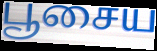
பூசைய